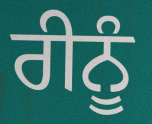
ਰੀਨੂੰ